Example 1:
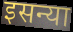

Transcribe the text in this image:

इसन्या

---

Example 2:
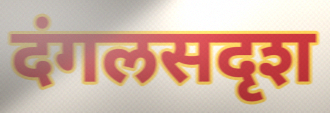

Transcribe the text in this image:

दंगलसदृश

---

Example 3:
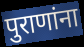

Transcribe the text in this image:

पुराणांना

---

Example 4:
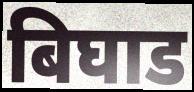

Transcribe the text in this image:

बिघाड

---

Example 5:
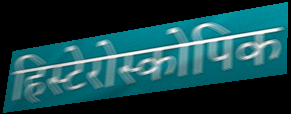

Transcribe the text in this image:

हिस्टेरोस्कोपिक